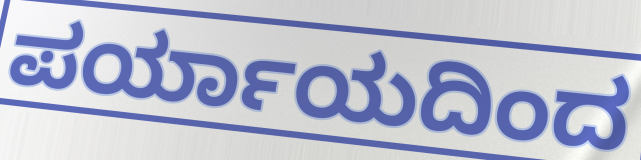
ಪರ್ಯಾಯದಿಂದ